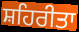
ਸ਼ਹਿਰੀਤਾ